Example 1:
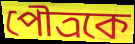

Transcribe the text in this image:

পৌত্রকে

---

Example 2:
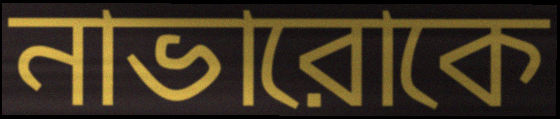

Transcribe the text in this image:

নাভারোকে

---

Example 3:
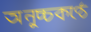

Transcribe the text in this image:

অনুচ্চকণ্ঠে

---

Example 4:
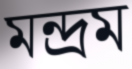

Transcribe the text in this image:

মন্দ্রম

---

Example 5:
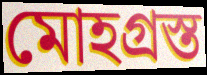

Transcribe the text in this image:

মোহগ্রস্ত